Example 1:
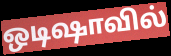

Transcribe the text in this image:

ஒடிஷாவில்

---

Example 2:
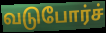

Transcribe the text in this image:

வடுபோர்ச்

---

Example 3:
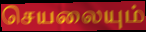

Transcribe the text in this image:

செயலையும்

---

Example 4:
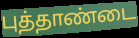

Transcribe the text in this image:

புத்தாண்டை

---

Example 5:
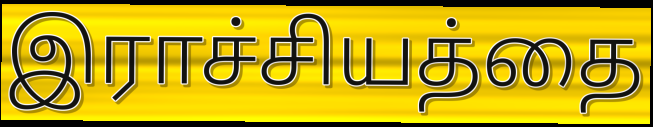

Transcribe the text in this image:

இராச்சியத்தை